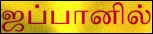
ஜப்பானில்